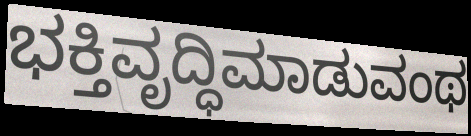
ಭಕ್ತಿವೃದ್ಧಿಮಾಡುವಂಥ